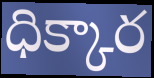
ధిక్కార